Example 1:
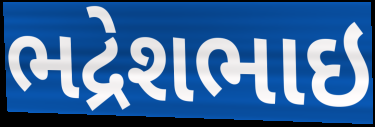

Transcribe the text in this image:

ભદ્રેશભાઇ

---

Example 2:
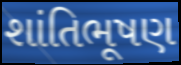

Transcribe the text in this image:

શાંતિભૂષણ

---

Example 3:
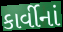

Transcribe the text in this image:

કાર્વીનાં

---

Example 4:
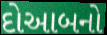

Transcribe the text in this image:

દોઆબનો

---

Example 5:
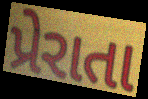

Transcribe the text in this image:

પ્રેરાતા